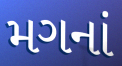
મગનાં